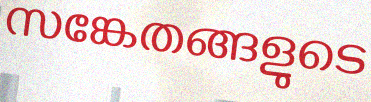
സങ്കേതങ്ങളുടെ